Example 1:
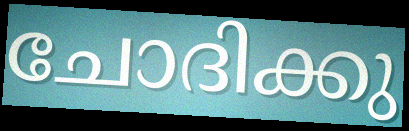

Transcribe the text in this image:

ചോദിക്കു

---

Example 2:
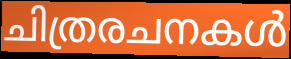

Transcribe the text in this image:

ചിത്രരചനകൾ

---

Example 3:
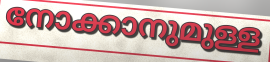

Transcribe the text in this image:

നോക്കാനുമുള്ള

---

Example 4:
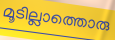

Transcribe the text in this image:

മൂടില്ലാത്തൊരു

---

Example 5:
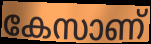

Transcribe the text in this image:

കേസാണ്